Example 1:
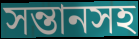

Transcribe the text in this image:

সন্তানসহ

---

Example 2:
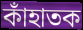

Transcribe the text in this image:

কাঁহাতক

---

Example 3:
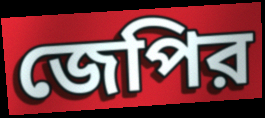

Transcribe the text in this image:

জেপির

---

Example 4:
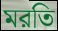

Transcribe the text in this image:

মরতি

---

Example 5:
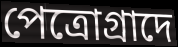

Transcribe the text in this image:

পেত্রোগ্রাদে